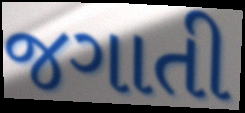
જગાતી